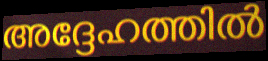
അദ്ദേഹത്തിൽ